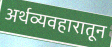
अर्थव्यवहारातून